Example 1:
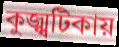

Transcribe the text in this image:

কুজ্ঝ্বটিকায়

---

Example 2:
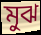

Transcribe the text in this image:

মুঝ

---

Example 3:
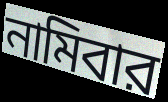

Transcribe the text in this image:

নামিবার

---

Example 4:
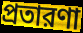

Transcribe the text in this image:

প্রতারণা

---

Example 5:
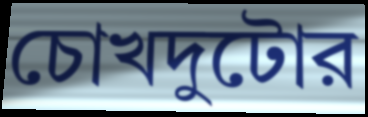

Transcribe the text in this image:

চোখদুটোর